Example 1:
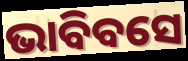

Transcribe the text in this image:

ଭାବିବସେ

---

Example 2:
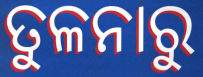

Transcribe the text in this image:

ତୁଳନାରୁ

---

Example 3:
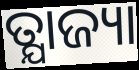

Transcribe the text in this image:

ତ୍ଯାଜ୍ୟା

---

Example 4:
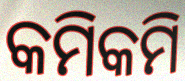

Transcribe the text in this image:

କମିକମି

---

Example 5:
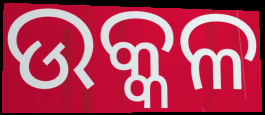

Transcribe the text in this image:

ଉକ୍କଳ